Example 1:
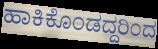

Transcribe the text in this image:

ಹಾಕಿಕೊಂಡದ್ದರಿಂದ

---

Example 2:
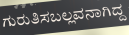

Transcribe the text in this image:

ಗುರುತಿಸಬಲ್ಲವನಾಗಿದ್ದ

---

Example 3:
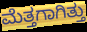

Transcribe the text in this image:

ಮೆತ್ತಗಾಗಿತ್ತು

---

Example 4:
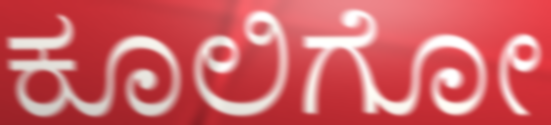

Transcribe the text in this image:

ಕೂಲಿಗೋ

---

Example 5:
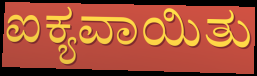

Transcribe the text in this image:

ಐಕ್ಯವಾಯಿತು